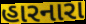
હારનારા